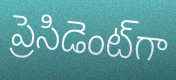
ప్రెసిడెంట్‌గా